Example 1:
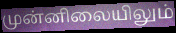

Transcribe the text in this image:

முன்னிலையிலும்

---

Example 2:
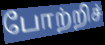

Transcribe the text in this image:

போற்றிச்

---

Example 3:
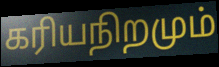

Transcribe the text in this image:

கரியநிறமும்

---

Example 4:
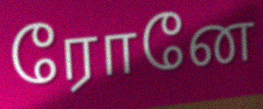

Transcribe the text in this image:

ரோனே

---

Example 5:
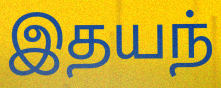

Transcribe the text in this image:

இதயந்